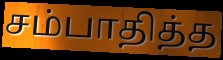
சம்பாதித்த